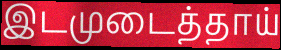
இடமுடைத்தாய்